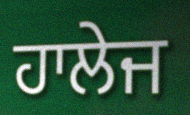
ਹਾਲੇਜ